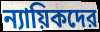
ন্যায়িকদের